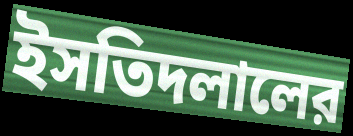
ইসতিদলালের